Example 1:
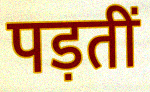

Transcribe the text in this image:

पड़तीं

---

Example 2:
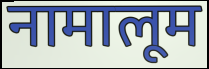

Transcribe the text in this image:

नामालूम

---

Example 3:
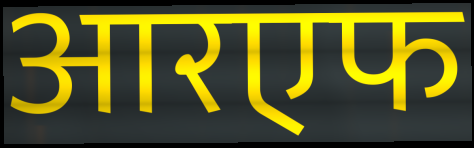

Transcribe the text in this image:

आरएफ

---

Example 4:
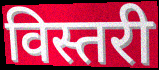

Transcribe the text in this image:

विस्तरी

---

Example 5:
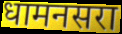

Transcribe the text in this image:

धामनसरा